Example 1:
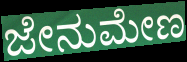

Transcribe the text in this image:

ಜೇನುಮೇಣ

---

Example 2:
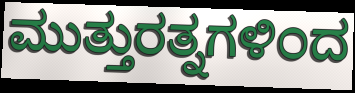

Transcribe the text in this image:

ಮುತ್ತುರತ್ನಗಳಿಂದ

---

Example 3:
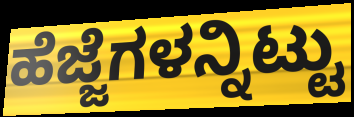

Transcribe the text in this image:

ಹೆಜ್ಜೆಗಳನ್ನಿಟ್ಟು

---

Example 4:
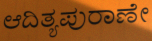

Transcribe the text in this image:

ಆದಿತ್ಯಪುರಾಣೇ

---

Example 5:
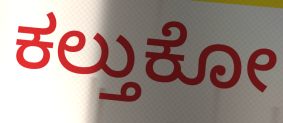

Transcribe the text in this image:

ಕಲ್ತುಕೋ